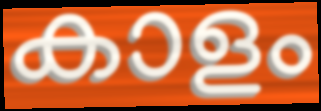
കാളം